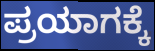
ಪ್ರಯಾಗಕ್ಕೆ